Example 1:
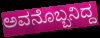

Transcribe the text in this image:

ಅವನೊಬ್ಬನಿದ್ದ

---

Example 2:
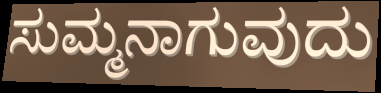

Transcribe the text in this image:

ಸುಮ್ಮನಾಗುವುದು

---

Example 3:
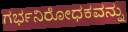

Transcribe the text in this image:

ಗರ್ಭನಿರೋಧಕವನ್ನು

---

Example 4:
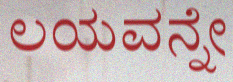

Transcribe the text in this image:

ಲಯವನ್ನೇ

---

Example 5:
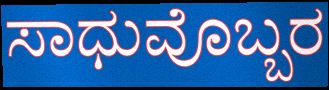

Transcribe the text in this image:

ಸಾಧುವೊಬ್ಬರ